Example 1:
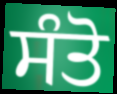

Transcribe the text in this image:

ਸੰਤੋ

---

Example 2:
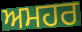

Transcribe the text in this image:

ਅਮਹਰ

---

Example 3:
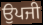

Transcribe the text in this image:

ਉਪਜੀ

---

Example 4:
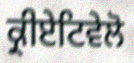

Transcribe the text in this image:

ਕ੍ਰੀਏਟਿਵੇਲੋ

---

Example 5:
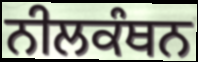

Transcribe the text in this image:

ਨੀਲਕੰਥਨ